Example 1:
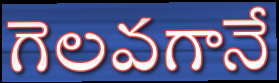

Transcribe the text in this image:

గెలవగానే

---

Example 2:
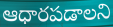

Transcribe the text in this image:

ఆధారపడాలని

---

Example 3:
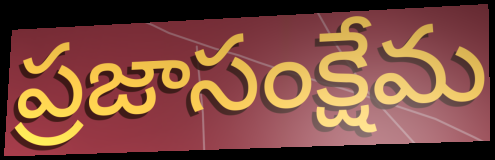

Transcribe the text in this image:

ప్రజాసంక్షేమ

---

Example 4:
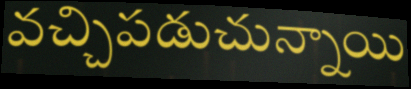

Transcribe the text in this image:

వచ్చిపడుచున్నాయి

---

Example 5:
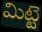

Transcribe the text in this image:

మిట్టె